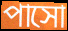
পাসো